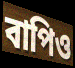
বাপিও